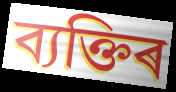
ব্যক্তিৰ